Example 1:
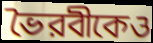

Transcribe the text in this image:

ভৈরবীকেও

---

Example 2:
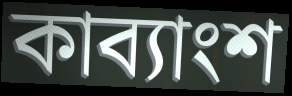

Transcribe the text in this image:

কাব্যাংশ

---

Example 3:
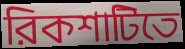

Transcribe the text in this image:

রিকশাটিতে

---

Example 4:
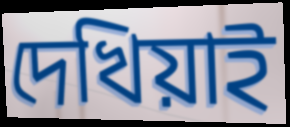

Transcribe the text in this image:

দেখিয়াই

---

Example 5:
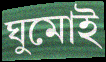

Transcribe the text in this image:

ঘুমোই